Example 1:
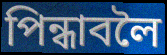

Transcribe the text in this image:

পিন্ধাবলৈ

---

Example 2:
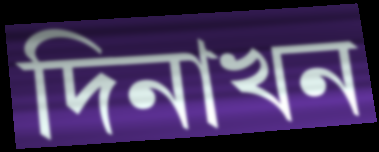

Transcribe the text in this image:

দিনাখন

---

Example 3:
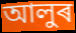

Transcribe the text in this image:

আলুৰ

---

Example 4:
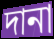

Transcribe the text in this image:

দানা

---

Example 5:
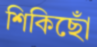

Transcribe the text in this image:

শিকিছোঁ